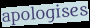
apologises